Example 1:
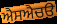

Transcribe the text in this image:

ਐਸਐਚੳ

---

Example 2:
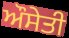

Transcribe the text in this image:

ਔਸੇਤੀ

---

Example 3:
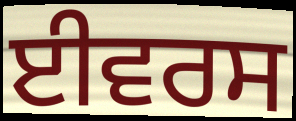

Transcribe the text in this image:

ਈਵਰਸ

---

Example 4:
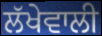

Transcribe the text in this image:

ਲੱਖੇਵਾਲੀ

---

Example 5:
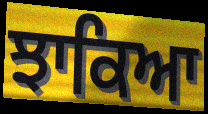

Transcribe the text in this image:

ਝਾਕਿਆ